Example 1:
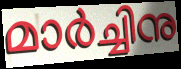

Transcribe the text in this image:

മാർച്ചിനു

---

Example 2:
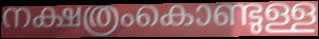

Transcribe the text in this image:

നക്ഷത്രംകൊണ്ടുള്ള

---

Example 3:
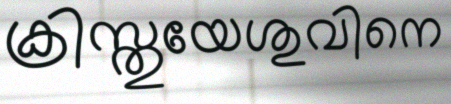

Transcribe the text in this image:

ക്രിസ്തുയേശുവിനെ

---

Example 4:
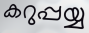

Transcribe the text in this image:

കറുപ്പയ്യ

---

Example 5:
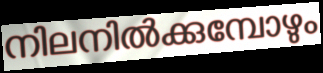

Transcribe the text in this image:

നിലനിൽക്കുമ്പോഴും